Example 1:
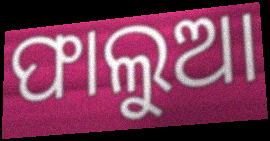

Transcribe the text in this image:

ଫାଲୁଆ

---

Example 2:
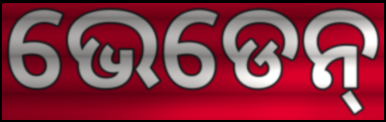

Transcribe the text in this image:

ଭେଡେନ୍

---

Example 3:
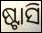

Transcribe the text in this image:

ଷ୍ଟାସି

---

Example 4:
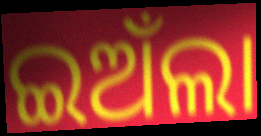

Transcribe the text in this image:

ଇଅଁଲା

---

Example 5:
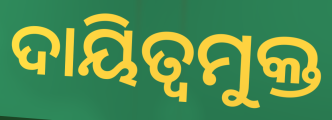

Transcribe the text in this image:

ଦାୟିତ୍ୱମୁକ୍ତ